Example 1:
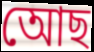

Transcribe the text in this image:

আেছ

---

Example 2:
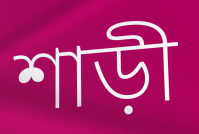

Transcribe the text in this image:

শাড়ী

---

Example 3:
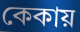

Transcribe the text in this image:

কেকায়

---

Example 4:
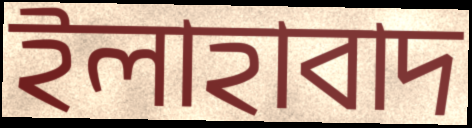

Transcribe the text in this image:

ইলাহাবাদ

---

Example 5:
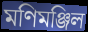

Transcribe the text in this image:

মণিমঞ্জিল